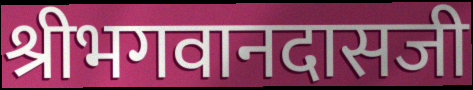
श्रीभगवानदासजी